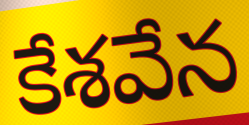
కేశవేన